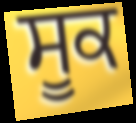
ਸੂਕ